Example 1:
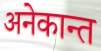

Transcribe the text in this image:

अनेकान्त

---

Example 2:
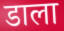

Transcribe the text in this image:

डाला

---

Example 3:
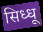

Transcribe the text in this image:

सिध्धू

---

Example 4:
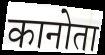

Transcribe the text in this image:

कानोता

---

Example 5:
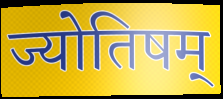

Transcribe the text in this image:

ज्योतिषम्